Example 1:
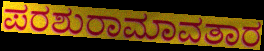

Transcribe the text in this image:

ಪರಶುರಾಮಾವತಾರ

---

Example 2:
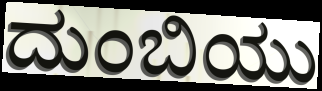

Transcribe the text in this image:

ದುಂಬಿಯು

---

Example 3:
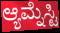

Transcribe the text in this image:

ಆ್ಯಮ್ನೆಸ್ಟಿ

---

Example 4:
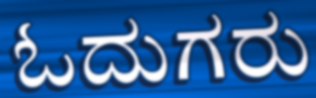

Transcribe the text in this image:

ಓದುಗರು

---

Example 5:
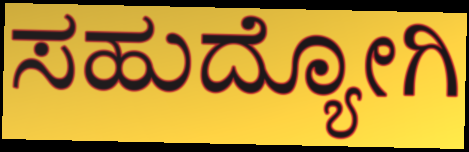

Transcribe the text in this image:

ಸಹುದ್ಯೋಗಿ